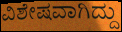
ವಿಶೇಷವಾಗಿದ್ದು